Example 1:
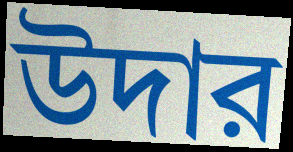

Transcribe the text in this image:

উদার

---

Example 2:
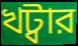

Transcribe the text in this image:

খট্বার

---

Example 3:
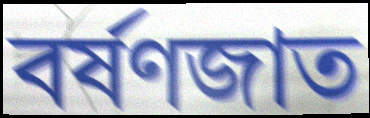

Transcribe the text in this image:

বর্ষণজাত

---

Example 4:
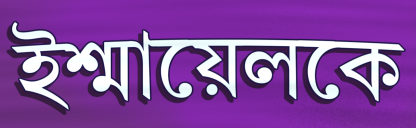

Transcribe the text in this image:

ইশ্মায়েলকে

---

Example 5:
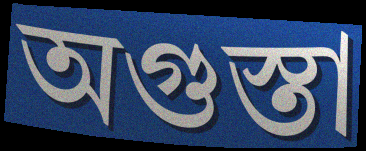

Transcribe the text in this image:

অগুস্তা